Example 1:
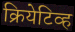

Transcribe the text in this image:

क्रियेटिव्ह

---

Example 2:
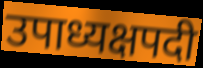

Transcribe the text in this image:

उपाध्यक्षपदी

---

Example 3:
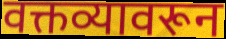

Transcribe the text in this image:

वक्तव्यावरून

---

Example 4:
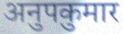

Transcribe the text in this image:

अनुपकुमार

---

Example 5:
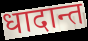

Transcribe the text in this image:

धादान्त